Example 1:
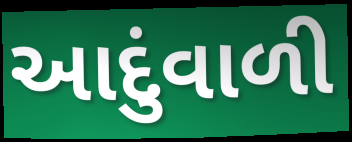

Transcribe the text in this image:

આદુંવાળી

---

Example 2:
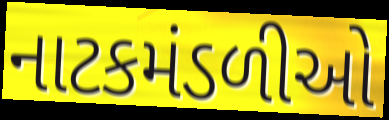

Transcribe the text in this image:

નાટકમંડળીઓ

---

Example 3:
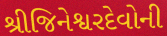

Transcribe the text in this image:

શ્રીજિનેશ્વરદેવોની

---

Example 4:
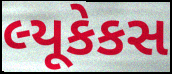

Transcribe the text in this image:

લ્યૂકેકસ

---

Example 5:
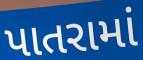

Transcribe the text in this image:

પાતરામાં